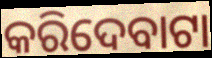
କରିଦେବାଟା